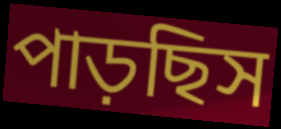
পাড়ছিস